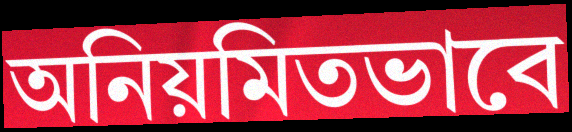
অনিয়মিতভাবে